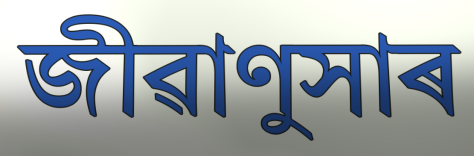
জীৱাণুসাৰ